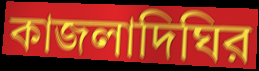
কাজলাদিঘির